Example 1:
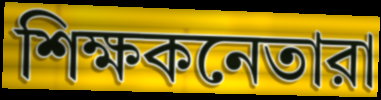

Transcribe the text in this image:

শিক্ষকনেতারা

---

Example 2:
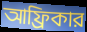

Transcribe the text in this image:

আফ্রিকার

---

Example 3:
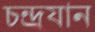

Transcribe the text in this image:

চন্দ্রযান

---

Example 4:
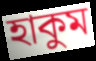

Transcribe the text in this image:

হাকুম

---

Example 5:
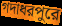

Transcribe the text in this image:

গদাধরপুরে